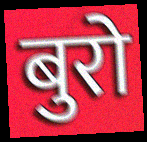
बुरो